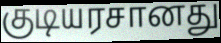
குடியரசானது